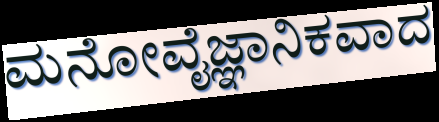
ಮನೋವೈಜ್ಞಾನಿಕವಾದ